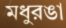
মধুরঙা